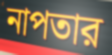
নাপতার